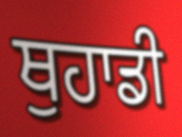
ਥੁਹਾਡੀ